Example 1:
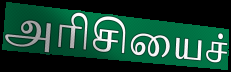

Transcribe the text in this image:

அரிசியைச்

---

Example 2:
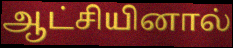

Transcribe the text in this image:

ஆட்சியினால்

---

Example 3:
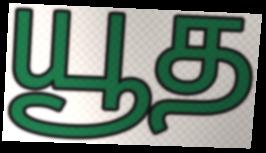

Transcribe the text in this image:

யூத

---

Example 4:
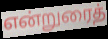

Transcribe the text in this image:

என்றுரைத்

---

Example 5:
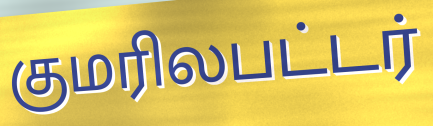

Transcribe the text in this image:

குமரிலபட்டர்